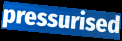
pressurised